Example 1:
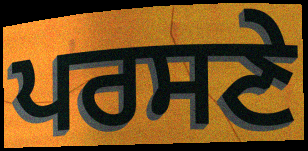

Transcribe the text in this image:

ਪਰਸਣੇ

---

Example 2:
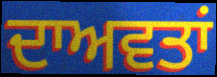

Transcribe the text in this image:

ਦਾਅਵਤਾਂ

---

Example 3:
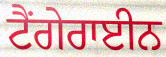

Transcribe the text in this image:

ਟੈਂਗੇਰਾਈਨ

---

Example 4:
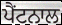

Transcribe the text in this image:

ਪੈਂਟਨਾਲ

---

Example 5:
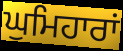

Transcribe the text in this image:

ਘੁਮਿਹਾਰਾਂ